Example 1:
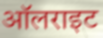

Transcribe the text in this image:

ऑलराइट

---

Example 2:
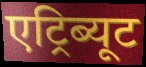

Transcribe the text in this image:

एट्रिब्यूट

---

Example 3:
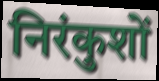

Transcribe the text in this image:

निरंकुशों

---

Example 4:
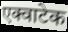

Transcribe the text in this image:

एक्वाटेक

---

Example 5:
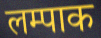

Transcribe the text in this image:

लम्पाक